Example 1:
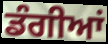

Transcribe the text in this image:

ਡੰਗੀਆਂ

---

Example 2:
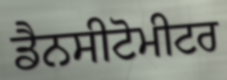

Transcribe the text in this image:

ਡੈਨਸੀਟੋਮੀਟਰ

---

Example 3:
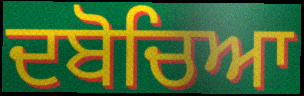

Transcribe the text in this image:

ਦਬੋਚਿਆ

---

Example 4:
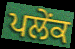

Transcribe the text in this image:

ਪਲੇਂਕ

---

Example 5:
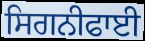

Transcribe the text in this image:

ਸਿਗਨੀਫਾਈ